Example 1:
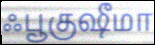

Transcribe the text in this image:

ஃபூகுஷீமா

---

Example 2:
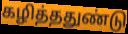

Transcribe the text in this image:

கழித்ததுண்டு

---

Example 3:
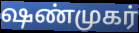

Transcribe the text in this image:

ஷண்முகர்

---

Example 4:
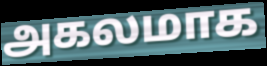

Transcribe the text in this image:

அகலமாக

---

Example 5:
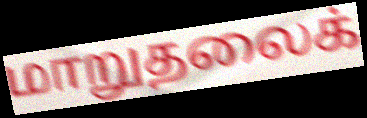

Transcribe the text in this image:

மாறுதலைக்